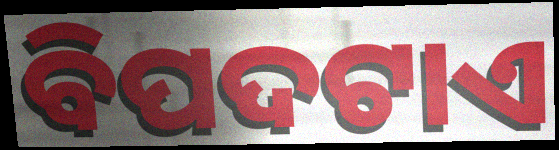
ବିପଦଟାଏ